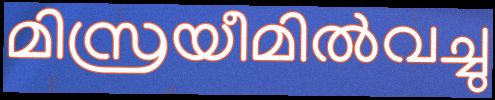
മിസ്രയീമിൽവച്ചു